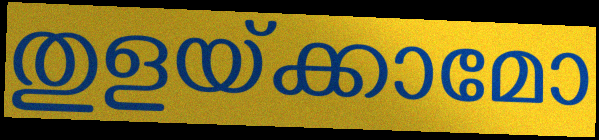
തുളയ്‌ക്കാമോ